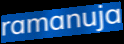
ramanuja